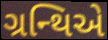
ગ્રન્થિએ